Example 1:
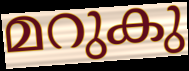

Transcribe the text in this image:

മറുകു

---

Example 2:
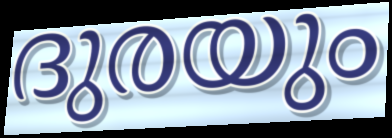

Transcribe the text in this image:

ദുരയും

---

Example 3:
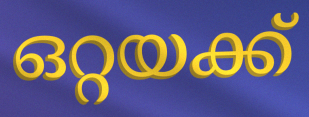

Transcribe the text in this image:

ഒറ്റയക്ക്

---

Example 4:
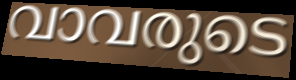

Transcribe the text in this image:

വാവരുടെ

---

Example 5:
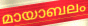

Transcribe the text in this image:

മായാബലം